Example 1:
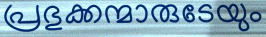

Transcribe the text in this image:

പ്രഭുക്കന്മാരുടേയും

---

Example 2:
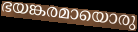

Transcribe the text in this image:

ഭയങ്കരമായൊരു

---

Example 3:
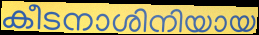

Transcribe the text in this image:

കീടനാശിനിയായ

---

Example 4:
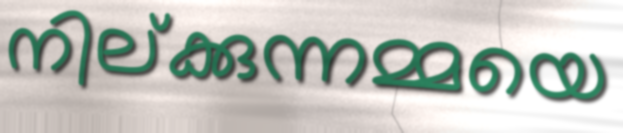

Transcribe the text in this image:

നില്ക്കുന്നമ്മയെ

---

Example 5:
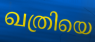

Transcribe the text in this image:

ഖത്രിയെ